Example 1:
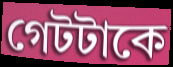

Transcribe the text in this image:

গেটটাকে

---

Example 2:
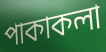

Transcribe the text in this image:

পাকাকলা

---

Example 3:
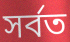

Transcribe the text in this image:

সর্বত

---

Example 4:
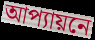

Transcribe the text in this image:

আপ্যায়নে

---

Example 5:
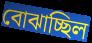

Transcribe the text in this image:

বোঝাচ্ছিল